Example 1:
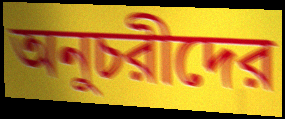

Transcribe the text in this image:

অনুচরীদের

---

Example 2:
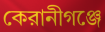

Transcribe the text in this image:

কেরানীগঞ্জে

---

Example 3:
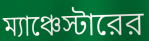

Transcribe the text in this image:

ম্যাঞ্চেস্টারের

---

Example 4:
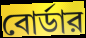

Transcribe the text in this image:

বোর্ডার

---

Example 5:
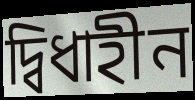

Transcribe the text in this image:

দ্বিধাহীন